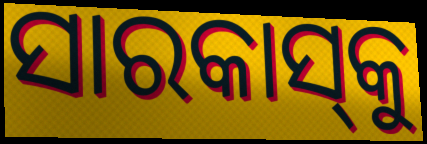
ସାରକାସ୍‌କୁ